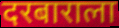
दरबाराला